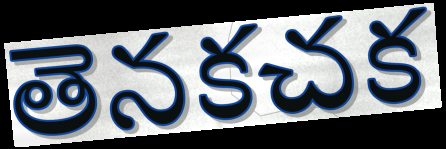
తెనకచక